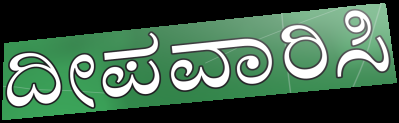
ದೀಪವಾರಿಸಿ